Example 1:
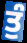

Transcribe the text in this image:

ਤੁੰ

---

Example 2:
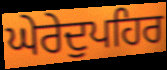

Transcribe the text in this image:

ਘੇਰੇਦੁਪਹਿਰ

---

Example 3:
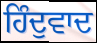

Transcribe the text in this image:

ਹਿੰਦੁਵਾਦ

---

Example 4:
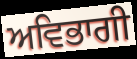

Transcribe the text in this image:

ਅਵਿਭਾਗੀ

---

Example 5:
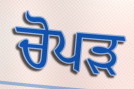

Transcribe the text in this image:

ਚੋਪੜ